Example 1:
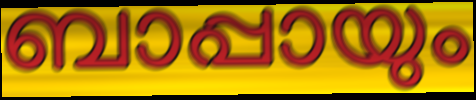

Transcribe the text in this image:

ബാപ്പായും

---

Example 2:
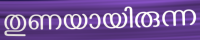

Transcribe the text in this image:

തുണയായിരുന്ന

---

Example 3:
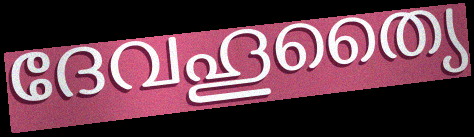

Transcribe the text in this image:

ദേവഹൂത്യൈ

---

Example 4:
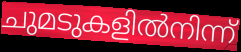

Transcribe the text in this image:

ചുമടുകളിൽനിന്ന്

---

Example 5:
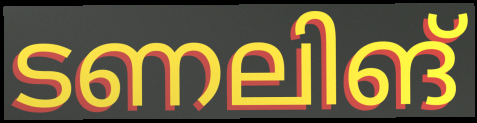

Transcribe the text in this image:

ടണലിങ്